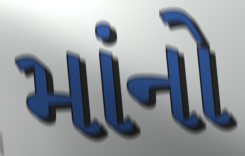
માંનો